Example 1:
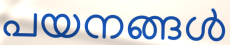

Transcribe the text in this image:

പയനങ്ങൾ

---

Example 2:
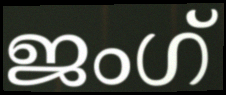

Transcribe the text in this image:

ജംഗ്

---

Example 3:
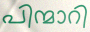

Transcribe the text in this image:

പിന്മാറി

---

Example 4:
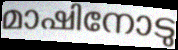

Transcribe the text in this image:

മാഷിനോടു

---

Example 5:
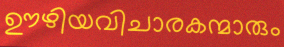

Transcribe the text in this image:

ഊഴിയവിചാരകന്മാരും